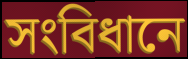
সংবিধানে